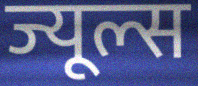
ज्यूल्स